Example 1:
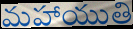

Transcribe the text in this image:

మహాయుతి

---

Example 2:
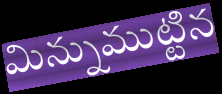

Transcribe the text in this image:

మిన్నుముట్టిన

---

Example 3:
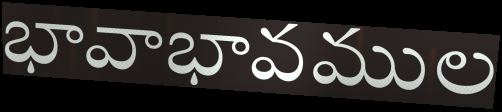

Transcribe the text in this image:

భావాభావముల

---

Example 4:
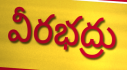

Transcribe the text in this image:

వీరభద్రు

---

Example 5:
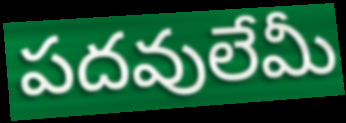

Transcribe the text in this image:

పదవులేమీ